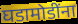
घडामोडींना